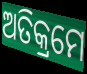
ଅତିକ୍ରମେ